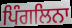
ਪਿੰਗਲਿਨਾ